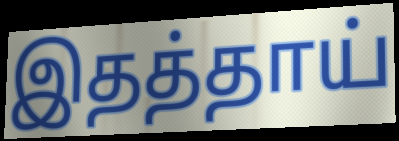
இதத்தாய்